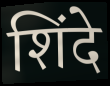
शिंदे